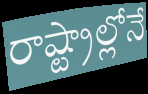
రాష్ట్రాల్లోనే